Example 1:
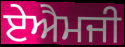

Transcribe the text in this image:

ਏਐਮਜੀ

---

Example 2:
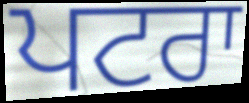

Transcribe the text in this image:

ਪਟਰਾ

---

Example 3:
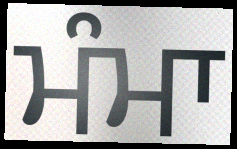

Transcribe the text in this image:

ਮੰਮਾ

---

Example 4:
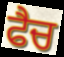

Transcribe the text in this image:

ਫੈਚ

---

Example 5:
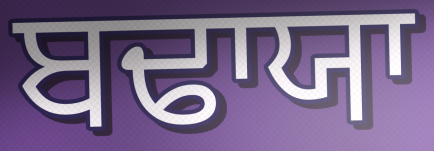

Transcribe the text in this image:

ਬਢਾਯਾ